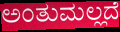
ಅಂತುಮಲ್ಲದೆ